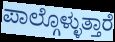
ಪಾಲ್ಗೊಳ್ಳುತ್ತಾರೆ